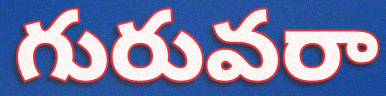
గురువరా